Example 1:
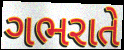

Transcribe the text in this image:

ગભરાતે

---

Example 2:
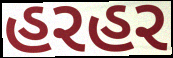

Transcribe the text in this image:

હરહર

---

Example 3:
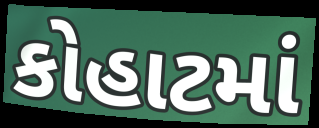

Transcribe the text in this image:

કોહાટમાં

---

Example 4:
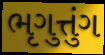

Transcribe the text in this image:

ભૃગુત્તુંગ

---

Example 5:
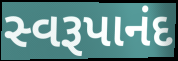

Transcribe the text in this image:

સ્વરૂપાનંદ